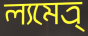
ল্যমেত্র্